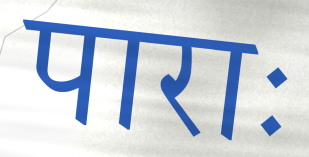
पाराः